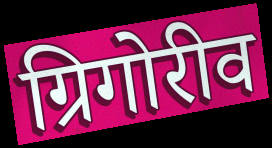
ग्रिगोरीव